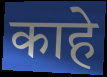
काहे